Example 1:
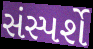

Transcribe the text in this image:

સંસ્પર્શે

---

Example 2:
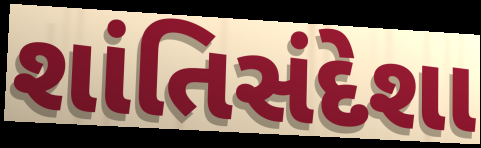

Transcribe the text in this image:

શાંતિસંદેશા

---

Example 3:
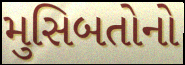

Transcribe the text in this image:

મુસિબતોનો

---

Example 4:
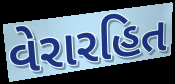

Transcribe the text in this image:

વેરારહિત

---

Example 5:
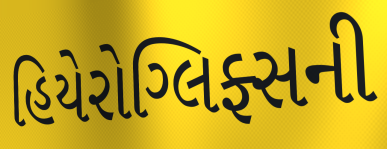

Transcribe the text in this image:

હિયેરોગ્લિફ્સની